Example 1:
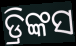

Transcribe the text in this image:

ଡ୍ରିଙ୍କସ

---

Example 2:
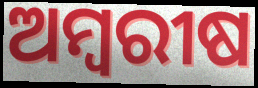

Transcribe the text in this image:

ଅମ୍ବରୀଷ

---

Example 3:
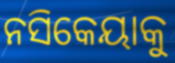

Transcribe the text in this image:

ନସିକେୟାକୁ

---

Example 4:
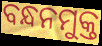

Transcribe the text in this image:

ବନ୍ଧନମୁକ୍ତ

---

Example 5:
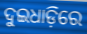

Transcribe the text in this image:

ଦୁଇଧାଡ଼ିରେ